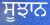
ਸੂਝਾਨ